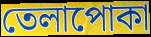
তেলাপোকা